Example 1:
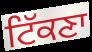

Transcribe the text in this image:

ਟਿੱਕਣਾ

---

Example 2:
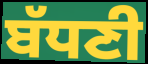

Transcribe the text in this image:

ਬੱਧਣੀ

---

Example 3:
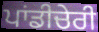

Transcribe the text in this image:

ਪਾਂਡੀਚੇਰੀ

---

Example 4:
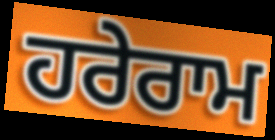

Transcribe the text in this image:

ਹਰੇਰਾਮ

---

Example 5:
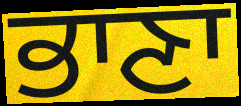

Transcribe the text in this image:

ਭਾਣਾ